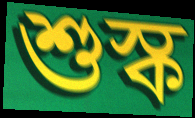
শুস্ক